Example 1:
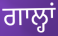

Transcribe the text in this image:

ਗਾਲ੍ਹਾਂ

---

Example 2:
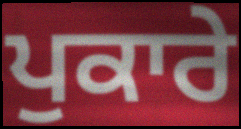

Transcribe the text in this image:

ਪੁਕਾਰੇ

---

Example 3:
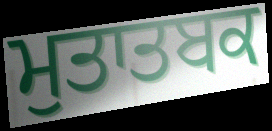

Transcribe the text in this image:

ਮੁਤਾਤਬਕ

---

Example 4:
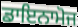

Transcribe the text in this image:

ਡਾਇਨਾਮੋਜ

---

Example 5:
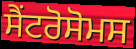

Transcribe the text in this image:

ਸੈਂਟਰੋਸੋਮਸ